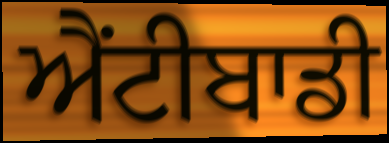
ਐਂਟੀਬਾਡੀ